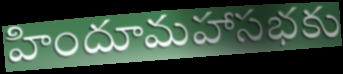
హిందూమహాసభకు